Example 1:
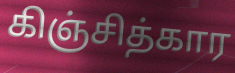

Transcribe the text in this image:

கிஞ்சித்கார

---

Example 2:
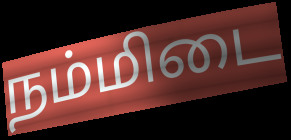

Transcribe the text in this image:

நம்மிடை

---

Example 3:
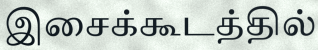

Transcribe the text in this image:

இசைக்கூடத்தில்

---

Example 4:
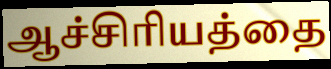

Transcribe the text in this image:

ஆச்சிரியத்தை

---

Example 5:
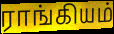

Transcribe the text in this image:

ராங்கியம்